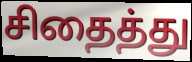
சிதைத்து